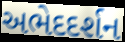
અભેદદર્શન